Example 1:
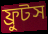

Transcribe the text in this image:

ফ্রুটস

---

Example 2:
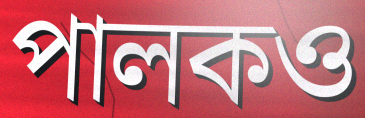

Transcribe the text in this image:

পালকও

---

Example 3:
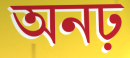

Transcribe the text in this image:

অনঢ়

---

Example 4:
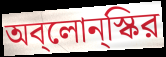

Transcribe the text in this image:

অব্‌লোন্‌স্কির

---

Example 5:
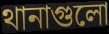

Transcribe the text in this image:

থানাগুলো